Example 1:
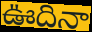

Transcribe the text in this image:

ఊదినా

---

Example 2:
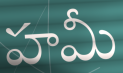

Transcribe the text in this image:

హమీ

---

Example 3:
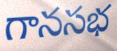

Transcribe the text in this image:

గానసభ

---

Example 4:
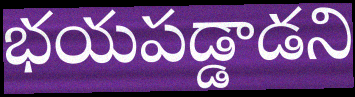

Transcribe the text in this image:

భయపడ్డాడని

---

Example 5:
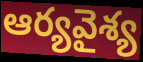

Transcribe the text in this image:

ఆర్యవైశ్య